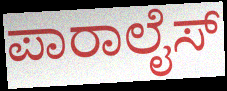
ಪಾರಾಲೈಸ್